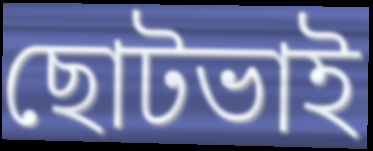
ছোটভাই